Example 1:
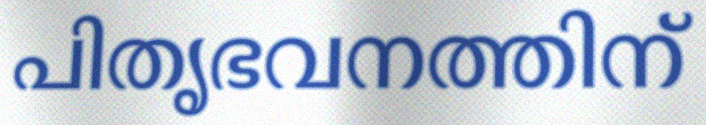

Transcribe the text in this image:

പിതൃഭവനത്തിന്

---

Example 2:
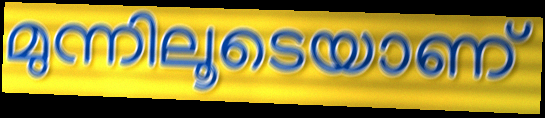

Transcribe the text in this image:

മുന്നിലൂടെയാണ്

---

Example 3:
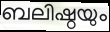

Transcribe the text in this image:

ബലിഷ്ഠയും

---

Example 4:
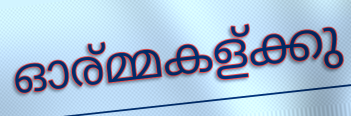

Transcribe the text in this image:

ഓര്മ്മകള്ക്കു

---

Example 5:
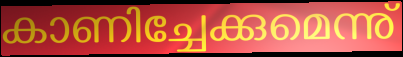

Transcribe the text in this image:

കാണിച്ചേക്കുമെന്നു്